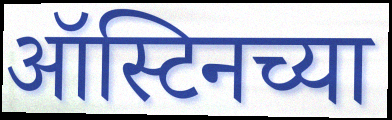
ऑस्टिनच्या